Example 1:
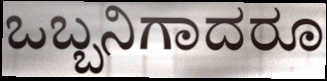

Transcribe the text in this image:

ಒಬ್ಬನಿಗಾದರೂ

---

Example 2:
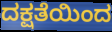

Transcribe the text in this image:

ದಕ್ಷತೆಯಿಂದ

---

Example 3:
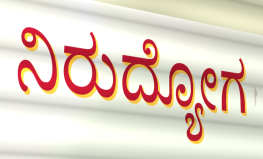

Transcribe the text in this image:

ನಿರುದ್ಯೋಗ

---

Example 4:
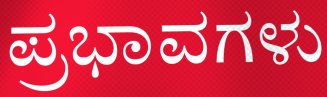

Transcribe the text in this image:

ಪ್ರಭಾವಗಳು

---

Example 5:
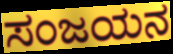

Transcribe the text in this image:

ಸಂಜಯನ